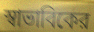
স্বাভাবিকের